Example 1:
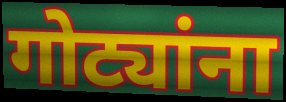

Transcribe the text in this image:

गोट्यांना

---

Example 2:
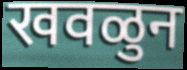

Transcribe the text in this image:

खवळुन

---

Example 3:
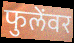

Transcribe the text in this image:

फुलेंवर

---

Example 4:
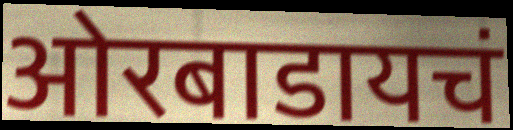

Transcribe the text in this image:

ओरबाडायचं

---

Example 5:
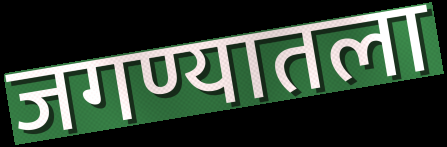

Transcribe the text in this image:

जगण्यातला